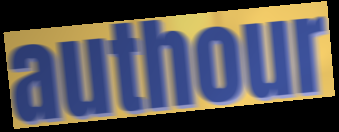
authour